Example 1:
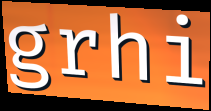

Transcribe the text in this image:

grhi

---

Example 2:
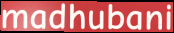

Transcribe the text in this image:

madhubani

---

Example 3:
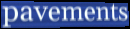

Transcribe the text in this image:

pavements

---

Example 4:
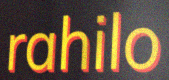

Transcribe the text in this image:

rahilo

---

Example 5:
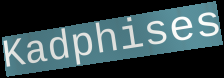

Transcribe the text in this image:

Kadphises